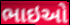
ભાઇઓ